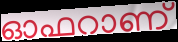
ഓഫറാണ്